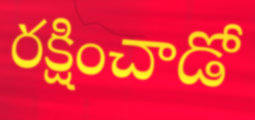
రక్షించాడో